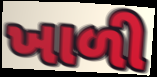
ખાળી